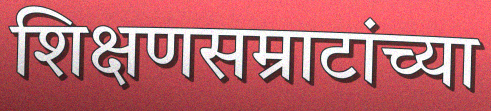
शिक्षणसम्राटांच्या